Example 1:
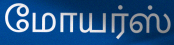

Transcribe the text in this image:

மோயர்ஸ்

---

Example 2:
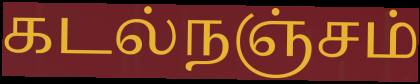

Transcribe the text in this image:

கடல்நஞ்சம்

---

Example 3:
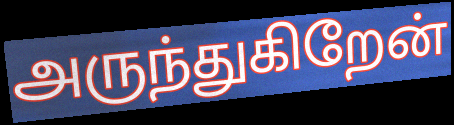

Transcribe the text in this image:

அருந்துகிறேன்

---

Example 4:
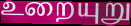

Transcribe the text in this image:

உறையுறு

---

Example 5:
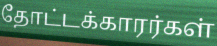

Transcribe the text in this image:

தோட்டக்காரர்கள்